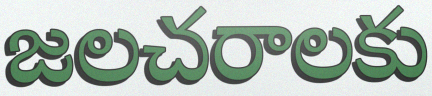
జలచరాలకు